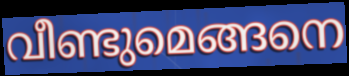
വീണ്ടുമെങ്ങനെ